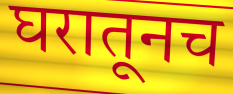
घरातूनच